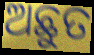
ଅଛୁତ